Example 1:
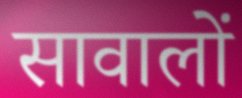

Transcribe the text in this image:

सावालों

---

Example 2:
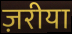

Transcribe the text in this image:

ज़रीया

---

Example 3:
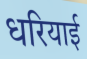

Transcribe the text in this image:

धरियाई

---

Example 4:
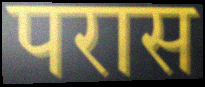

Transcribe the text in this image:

परास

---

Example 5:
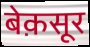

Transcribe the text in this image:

बेक़सूर